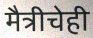
मैत्रीचेही